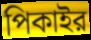
পিকাইর